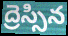
ద్రెస్సిన